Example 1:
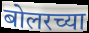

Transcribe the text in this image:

बोलरच्या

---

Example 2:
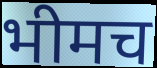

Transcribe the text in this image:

भीमच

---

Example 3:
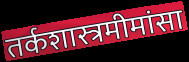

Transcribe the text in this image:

तर्कशास्त्रमीमांसा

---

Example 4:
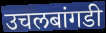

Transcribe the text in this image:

उचलबांगडी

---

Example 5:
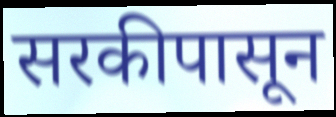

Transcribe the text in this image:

सरकीपासून